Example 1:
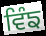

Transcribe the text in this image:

ਵਿੰਙ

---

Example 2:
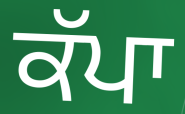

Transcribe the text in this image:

ਕੱਪਾ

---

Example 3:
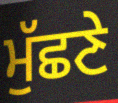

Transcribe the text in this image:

ਮੁੱਛਣੇ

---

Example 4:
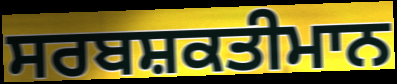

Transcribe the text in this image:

ਸਰਬਸ਼ਕਤੀਮਾਨ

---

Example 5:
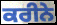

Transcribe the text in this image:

ਕਰੀਨੇ